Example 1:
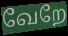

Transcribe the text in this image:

வேறே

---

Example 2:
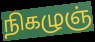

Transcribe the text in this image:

நிகழுஞ்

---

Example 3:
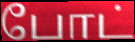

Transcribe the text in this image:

போட்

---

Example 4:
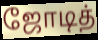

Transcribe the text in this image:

ஜோடித்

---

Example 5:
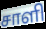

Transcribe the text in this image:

சாளி